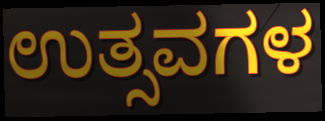
ಉತ್ಸವಗಳ